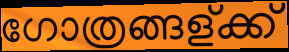
ഗോത്രങ്ങള്ക്ക്